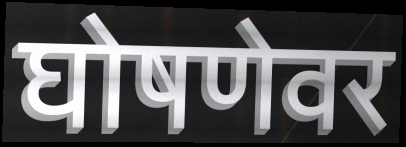
घोषणेवर